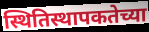
स्थितिस्थापकतेच्या